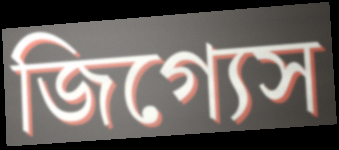
জিগ্যেস